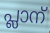
പ്ലാന്